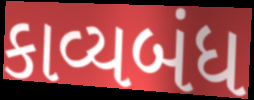
કાવ્યબંધ